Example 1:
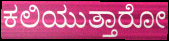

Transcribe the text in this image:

ಕಲಿಯುತ್ತಾರೋ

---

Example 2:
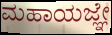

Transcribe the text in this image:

ಮಹಾಯಜ್ಞೇ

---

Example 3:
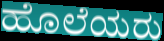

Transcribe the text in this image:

ಹೊಲೆಯರು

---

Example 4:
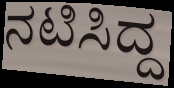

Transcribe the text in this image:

ನಟಿಸಿದ್ದ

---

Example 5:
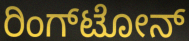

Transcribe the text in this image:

ರಿಂಗ್‌ಟೋನ್